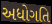
અધોગતિ